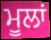
ਮੂਲਾਂ